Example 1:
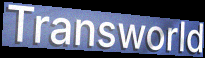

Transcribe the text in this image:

Transworld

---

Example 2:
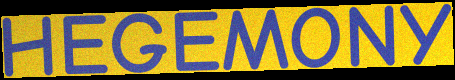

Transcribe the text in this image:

HEGEMONY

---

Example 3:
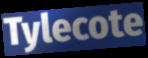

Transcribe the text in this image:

Tylecote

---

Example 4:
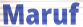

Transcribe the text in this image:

Maruf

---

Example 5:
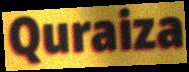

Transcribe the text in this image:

Quraiza